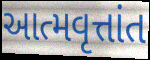
આત્મવૃત્તાંત